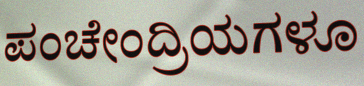
ಪಂಚೇಂದ್ರಿಯಗಳೂ